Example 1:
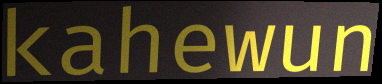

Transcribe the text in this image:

kahewun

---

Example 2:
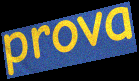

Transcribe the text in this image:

prova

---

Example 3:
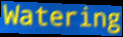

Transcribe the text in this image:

Watering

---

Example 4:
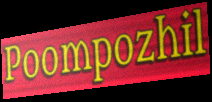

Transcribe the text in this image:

Poompozhil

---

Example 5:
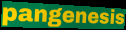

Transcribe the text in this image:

pangenesis